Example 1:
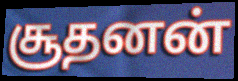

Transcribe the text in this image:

சூதனன்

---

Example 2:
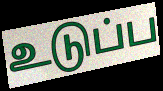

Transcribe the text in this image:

உடுப்ப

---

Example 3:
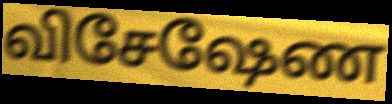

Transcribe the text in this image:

விசேஷேண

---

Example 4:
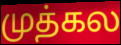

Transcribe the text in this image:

முத்கல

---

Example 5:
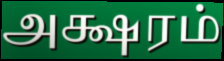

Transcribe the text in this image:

அக்ஷரம்